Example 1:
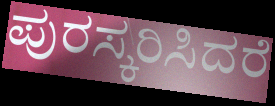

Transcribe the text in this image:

ಪುರಸ್ಕರಿಸಿದರೆ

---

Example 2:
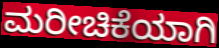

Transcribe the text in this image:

ಮರೀಚಿಕೆಯಾಗಿ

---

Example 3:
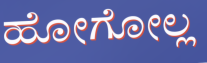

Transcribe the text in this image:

ಹೋಗೋಲ್ಲ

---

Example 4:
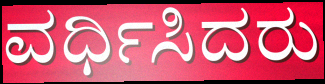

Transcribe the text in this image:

ವರ್ಧಿಸಿದರು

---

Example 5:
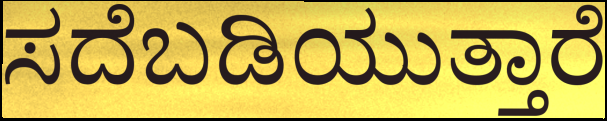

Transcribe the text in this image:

ಸದೆಬಡಿಯುತ್ತಾರೆ